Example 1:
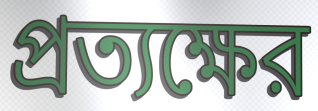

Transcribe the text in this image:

প্রত্যক্ষের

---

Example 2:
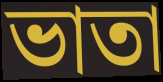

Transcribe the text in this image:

ভাতা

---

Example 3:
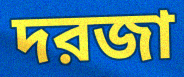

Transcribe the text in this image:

দরজা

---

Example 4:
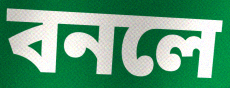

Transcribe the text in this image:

বনলে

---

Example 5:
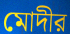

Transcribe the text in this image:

মোদীর